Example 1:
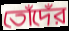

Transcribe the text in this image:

তোঁদেঁর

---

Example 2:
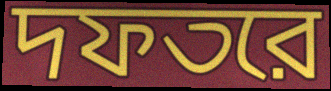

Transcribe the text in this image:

দফতরে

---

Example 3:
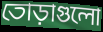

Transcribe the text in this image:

তোড়াগুলো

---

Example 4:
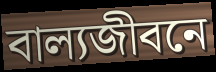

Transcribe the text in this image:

বাল্যজীবনে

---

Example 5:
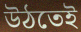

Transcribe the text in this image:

উঠতেই